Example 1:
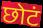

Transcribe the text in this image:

छोटं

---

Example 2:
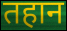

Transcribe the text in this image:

तहान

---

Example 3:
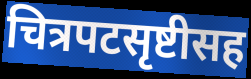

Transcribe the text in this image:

चित्रपटसृष्टीसह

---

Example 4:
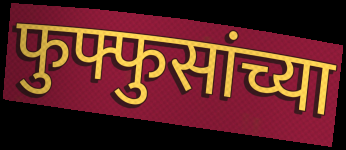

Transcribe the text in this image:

फुफ्फुसांच्या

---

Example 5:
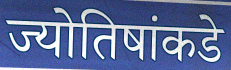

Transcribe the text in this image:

ज्योतिषांकडे